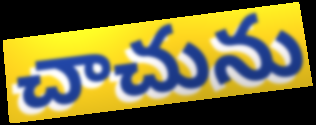
చాచును